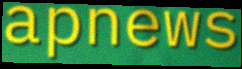
apnews